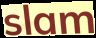
slam